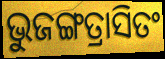
ଭୁଜଙ୍ଗତ୍ରାସିତଂ